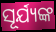
ସୂର୍ଯ୍ୟଙ୍କ